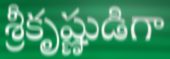
శ్రీకృష్ణుడిగా